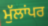
ਮੁੱਲਾਂਪਰ